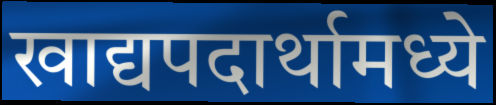
खाद्यपदार्थामध्ये